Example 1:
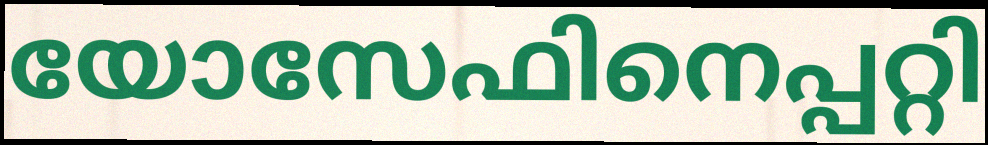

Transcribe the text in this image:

യോസേഫിനെപ്പറ്റി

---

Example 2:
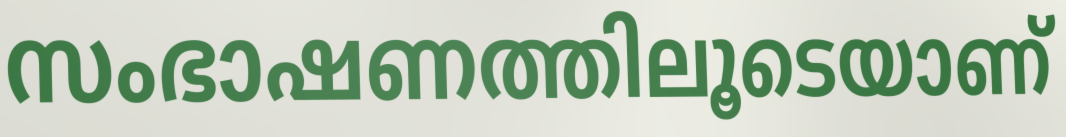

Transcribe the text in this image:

സംഭാഷണത്തിലൂടെയാണ്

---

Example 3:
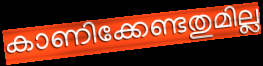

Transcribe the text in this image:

കാണിക്കേണ്ടതുമില്ല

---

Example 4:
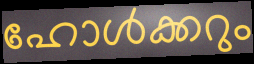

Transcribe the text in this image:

ഹോൾക്കറും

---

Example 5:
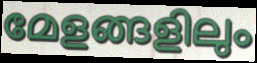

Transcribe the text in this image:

മേളങ്ങളിലും